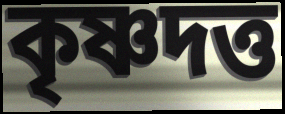
কৃষ্ণদত্ত